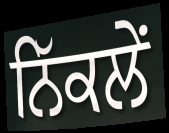
ਨਿੱਕਲੇਂ